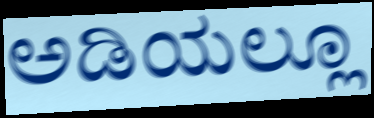
ಅಡಿಯಲ್ಲೂ